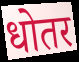
धोतर